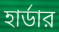
হার্ডার